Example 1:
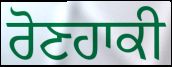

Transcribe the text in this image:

ਰੋਣਹਾਕੀ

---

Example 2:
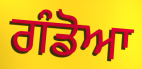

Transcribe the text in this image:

ਗੰਡੋਆ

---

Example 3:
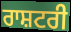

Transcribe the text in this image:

ਰਾਸ਼ਟਰੀ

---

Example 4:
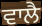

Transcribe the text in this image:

ਵਾਲੈ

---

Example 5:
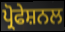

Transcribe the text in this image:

ਪ੍ਰੋਫੇਸ਼ਨਲ